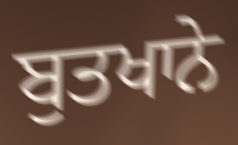
ਬੁਤਖਾਨੇ